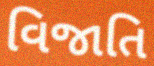
વિજાતિ